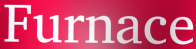
Furnace